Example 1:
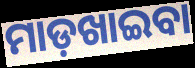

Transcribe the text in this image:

ମାଡ଼ଖାଇବା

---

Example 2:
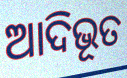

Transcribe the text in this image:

ଆଦିଭୂତ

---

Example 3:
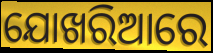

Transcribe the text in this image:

ଯୋଖରିଆରେ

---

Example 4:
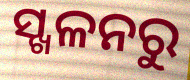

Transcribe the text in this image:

ସ୍ଖଳନରୁ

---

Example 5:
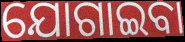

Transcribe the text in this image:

ଯୋଗାଇବା